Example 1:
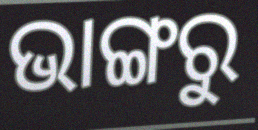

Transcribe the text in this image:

ଭାଙ୍ଗରୁ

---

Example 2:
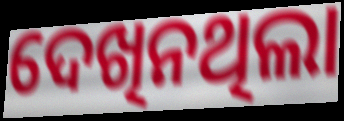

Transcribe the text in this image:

ଦେଖିନଥିଲା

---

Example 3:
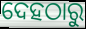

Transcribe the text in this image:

ଦେହଠାରୁ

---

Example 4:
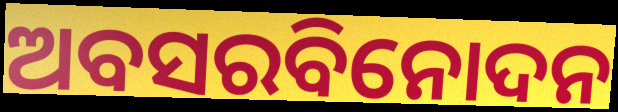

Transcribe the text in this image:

ଅବସରବିନୋଦନ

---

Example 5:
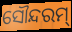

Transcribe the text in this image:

ସୌନ୍ଦରମ୍